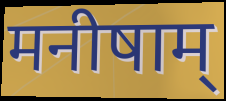
मनीषाम्